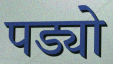
पड्यो